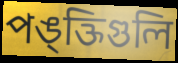
পঙ্‌ক্তিগুলি